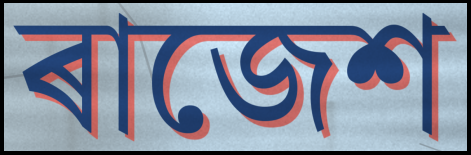
ৰাজেশ